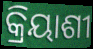
କ୍ରିୟାଶୀ